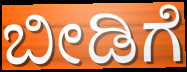
ಬೀಡಿಗೆ